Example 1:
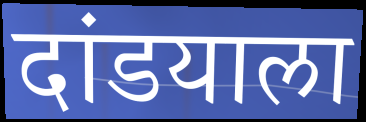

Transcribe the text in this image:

दांडयाला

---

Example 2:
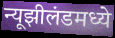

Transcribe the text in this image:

न्यूझीलंडमध्ये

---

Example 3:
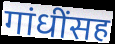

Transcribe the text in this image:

गांधींसह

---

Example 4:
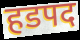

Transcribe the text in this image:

हडपद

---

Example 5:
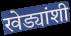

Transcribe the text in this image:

खेड्यांशी